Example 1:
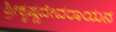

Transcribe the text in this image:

ಶ್ರೀಕೃಷ್ಣದೇವರಾಯನ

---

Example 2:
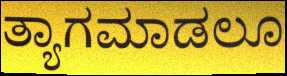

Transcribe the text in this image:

ತ್ಯಾಗಮಾಡಲೂ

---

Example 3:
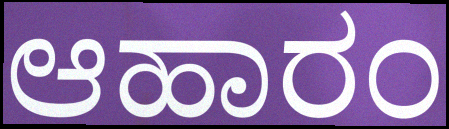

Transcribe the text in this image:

ಆಹಾರಂ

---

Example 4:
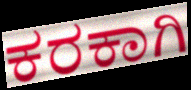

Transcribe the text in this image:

ಕರಕಾಗಿ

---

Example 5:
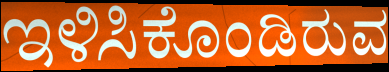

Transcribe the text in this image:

ಇಳಿಸಿಕೊಂಡಿರುವ